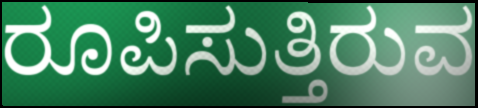
ರೂಪಿಸುತ್ತಿರುವ